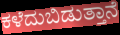
ಕಳೆದುಬಿಡುತ್ತಾನೆ